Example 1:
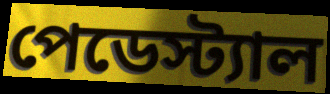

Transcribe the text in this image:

পেডেস্ট্যাল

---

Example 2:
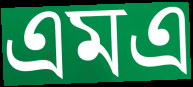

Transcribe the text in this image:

এমএ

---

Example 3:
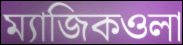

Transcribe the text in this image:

ম্যাজিকওলা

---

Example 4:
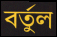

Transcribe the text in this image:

বর্তুল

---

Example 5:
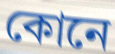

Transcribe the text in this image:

কোনে